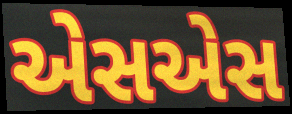
એસએસ